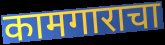
कामगाराचा